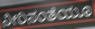
ನೀರಿನಂತೆಯೂ